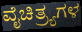
ವೈಚಿತ್ರ್ಯಗಳ